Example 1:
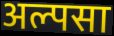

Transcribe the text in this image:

अल्पसा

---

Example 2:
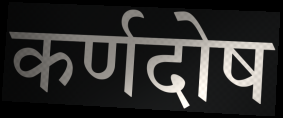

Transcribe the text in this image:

कर्णदोष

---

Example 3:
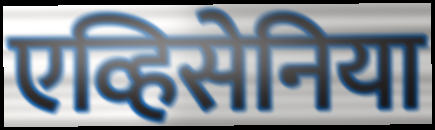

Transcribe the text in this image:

एव्हिसेनिया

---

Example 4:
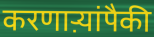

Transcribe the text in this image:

करणाऱ्‍यांपैकी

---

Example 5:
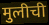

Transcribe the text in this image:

मुलीची